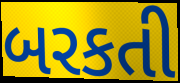
બરકતી